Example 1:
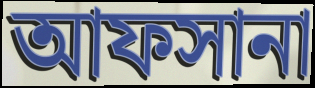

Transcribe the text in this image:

আফসানা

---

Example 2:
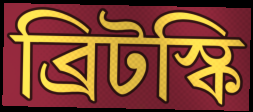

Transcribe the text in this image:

ব্রিটস্কি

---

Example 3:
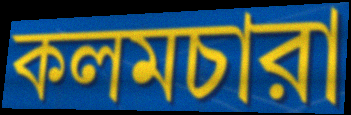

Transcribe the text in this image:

কলমচারা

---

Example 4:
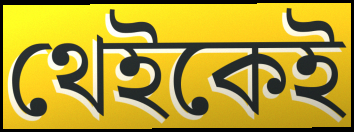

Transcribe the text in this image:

থেইকেই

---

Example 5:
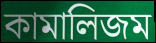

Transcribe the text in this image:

কামালিজম